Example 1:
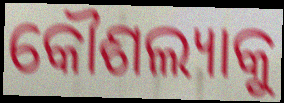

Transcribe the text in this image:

କୌଶଲ୍ୟାକୁ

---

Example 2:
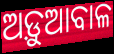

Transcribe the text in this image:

ଅଡ଼ୁଆବାଳ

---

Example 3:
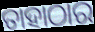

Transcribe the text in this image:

ତାହାଠାର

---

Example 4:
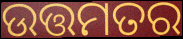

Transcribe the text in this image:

ଉତ୍ତମତର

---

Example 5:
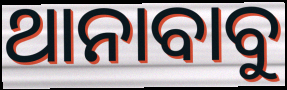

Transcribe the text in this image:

ଥାନାବାବୁ